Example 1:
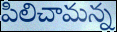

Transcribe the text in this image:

పిలిచామన్న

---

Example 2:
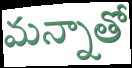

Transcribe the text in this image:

మన్నాతో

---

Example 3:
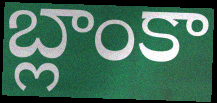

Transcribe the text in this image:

బ్లాంకా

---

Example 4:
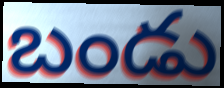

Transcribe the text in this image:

బండు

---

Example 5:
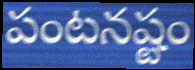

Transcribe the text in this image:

పంటనష్టం